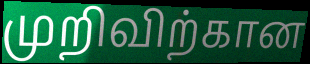
முறிவிற்கான